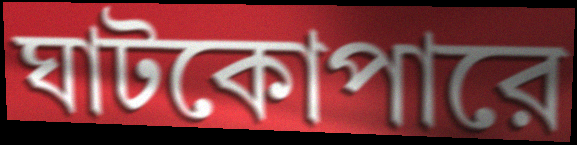
ঘাটকোপারে